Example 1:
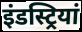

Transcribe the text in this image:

इंडस्ट्रियां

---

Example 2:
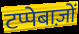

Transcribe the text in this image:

टप्पेबाज़ों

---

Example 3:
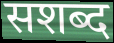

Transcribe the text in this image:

सशब्द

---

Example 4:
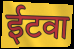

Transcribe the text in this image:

ईटवा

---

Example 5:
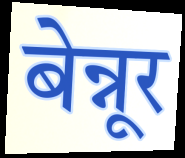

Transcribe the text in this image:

बेन्नूर